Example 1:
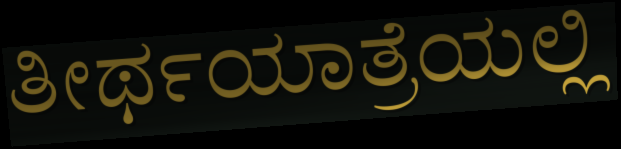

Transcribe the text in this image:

ತೀರ್ಥಯಾತ್ರೆಯಲ್ಲಿ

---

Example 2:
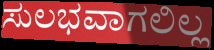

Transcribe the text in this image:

ಸುಲಭವಾಗಲಿಲ್ಲ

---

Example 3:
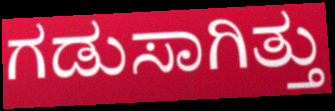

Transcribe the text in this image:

ಗಡುಸಾಗಿತ್ತು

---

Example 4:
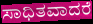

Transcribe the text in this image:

ಸಾಧಿತವಾದರೆ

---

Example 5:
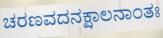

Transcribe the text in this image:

ಚರಣವದನಕ್ಷಾಲನಾಂತಃ